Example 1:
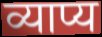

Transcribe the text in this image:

व्याप्य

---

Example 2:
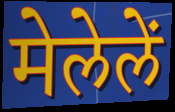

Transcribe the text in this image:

मेलेलें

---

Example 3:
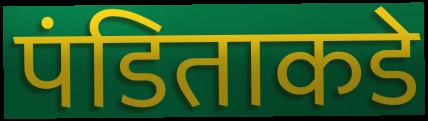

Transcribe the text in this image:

पंडिताकडे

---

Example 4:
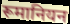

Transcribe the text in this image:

रूमानियन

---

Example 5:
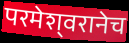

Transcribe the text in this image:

परमेश्वरानेच